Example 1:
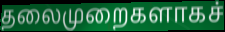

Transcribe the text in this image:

தலைமுறைகளாகச்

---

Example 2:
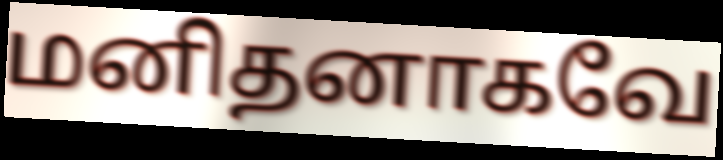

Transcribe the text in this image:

மனிதனாகவே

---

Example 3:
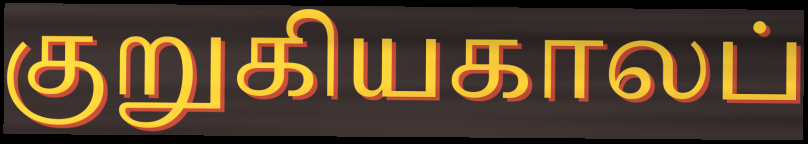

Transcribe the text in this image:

குறுகியகாலப்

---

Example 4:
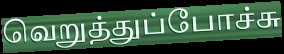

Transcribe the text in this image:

வெறுத்துப்போச்சு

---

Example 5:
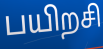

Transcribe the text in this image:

பயிறசி